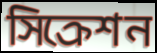
সিক্রেশন